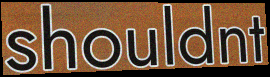
shouldnt